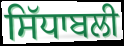
ਸਿੱਧਾਬਲੀ